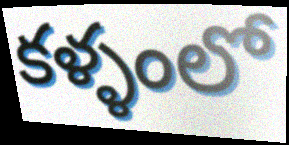
కళ్ళంలో